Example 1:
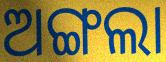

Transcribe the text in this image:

ଅଙ୍ଗଲା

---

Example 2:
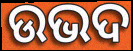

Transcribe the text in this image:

ଉଭଦ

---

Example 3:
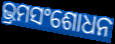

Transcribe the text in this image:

ଭ୍ରମସଂଶୋଧନ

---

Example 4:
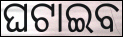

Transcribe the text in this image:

ଘଟାଇବ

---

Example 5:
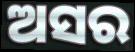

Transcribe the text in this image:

ଅସର